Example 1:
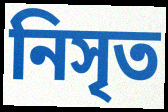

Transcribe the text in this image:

নিসৃত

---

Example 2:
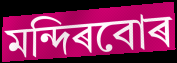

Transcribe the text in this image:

মন্দিৰবোৰ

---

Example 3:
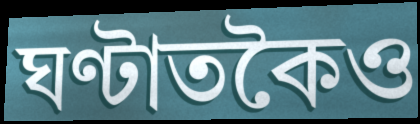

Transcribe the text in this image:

ঘণ্টাতকৈও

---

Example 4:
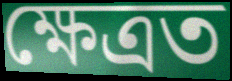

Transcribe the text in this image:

ক্ষেত্ৰত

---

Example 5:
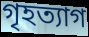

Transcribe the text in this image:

গৃহত্যাগ